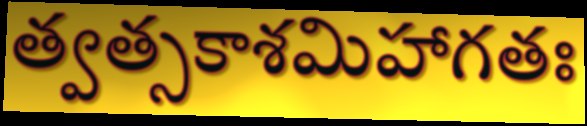
త్వత్సకాశమిహాగతః